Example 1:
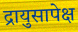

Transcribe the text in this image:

द्रायुसापेक्ष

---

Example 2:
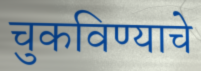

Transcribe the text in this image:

चुकविण्याचे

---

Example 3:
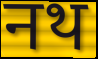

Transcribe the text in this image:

नथ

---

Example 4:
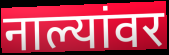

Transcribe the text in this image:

नाल्यांवर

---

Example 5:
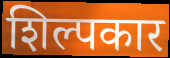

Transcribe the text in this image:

शिल्पकार